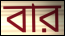
বার